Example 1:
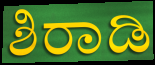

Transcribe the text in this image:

ಶಿರಾಡಿ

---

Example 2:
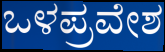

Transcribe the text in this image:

ಒಳಪ್ರವೇಶ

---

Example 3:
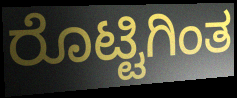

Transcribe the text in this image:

ರೊಟ್ಟಿಗಿಂತ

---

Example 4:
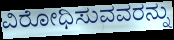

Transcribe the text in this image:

ವಿರೋಧಿಸುವವರನ್ನು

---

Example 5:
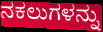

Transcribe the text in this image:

ನಕಲುಗಳನ್ನು